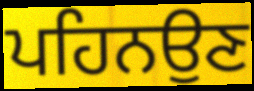
ਪਹਿਨਉਣ